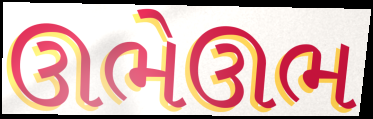
ઊભેઊભ